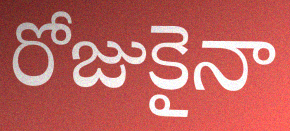
రోజుకైనా